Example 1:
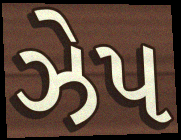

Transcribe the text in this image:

ઝેપ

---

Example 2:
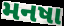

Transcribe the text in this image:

મનષા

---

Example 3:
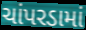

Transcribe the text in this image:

ચાંપરડામાં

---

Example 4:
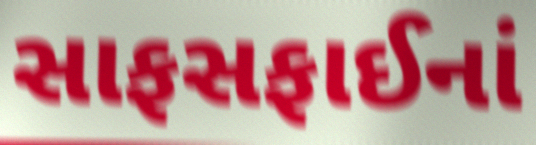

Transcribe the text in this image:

સાફસફાઈનાં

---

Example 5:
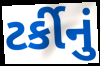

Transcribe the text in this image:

ટર્કીનું